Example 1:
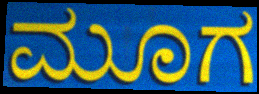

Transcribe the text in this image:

ಮೂಗ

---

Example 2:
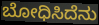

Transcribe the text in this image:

ಬೋಧಿಸಿದೆನು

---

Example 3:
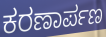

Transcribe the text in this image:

ಕರಣಾರ್ಪಣ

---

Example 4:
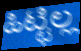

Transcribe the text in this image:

ಹಿಟ್ಟಿಲ್ಲ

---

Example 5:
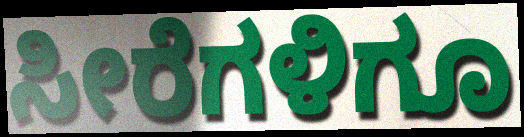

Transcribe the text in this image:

ಸೀರೆಗಳಿಗೂ